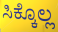
ಸಿಕ್ಕೊಲ್ಲ